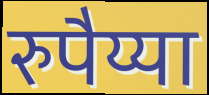
रुपैय्या